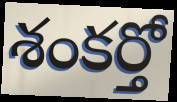
శంకర్తో